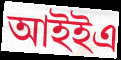
আইইএ